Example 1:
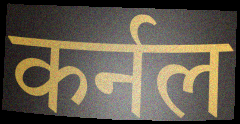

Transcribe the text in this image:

कर्नल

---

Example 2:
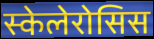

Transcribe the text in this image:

स्केलेरोसिस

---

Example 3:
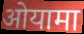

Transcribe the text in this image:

ओयामा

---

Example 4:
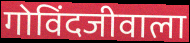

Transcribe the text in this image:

गोविंदजीवाला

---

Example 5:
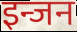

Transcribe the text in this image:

इन्जन